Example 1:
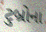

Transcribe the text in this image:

ટુબ્રોના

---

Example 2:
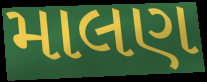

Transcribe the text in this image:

માલણ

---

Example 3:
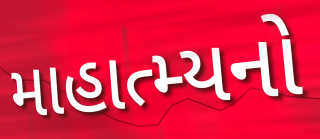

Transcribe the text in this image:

માહાત્મ્યનો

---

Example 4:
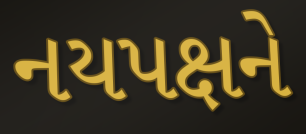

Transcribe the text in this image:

નયપક્ષને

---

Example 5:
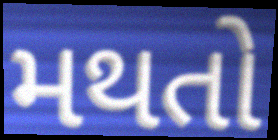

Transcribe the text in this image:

મથતો